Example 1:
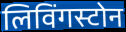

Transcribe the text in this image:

लिविंगस्टोन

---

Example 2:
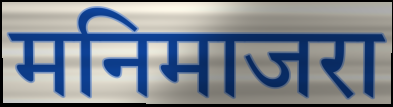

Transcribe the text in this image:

मनिमाजरा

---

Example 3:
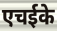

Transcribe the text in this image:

एचईके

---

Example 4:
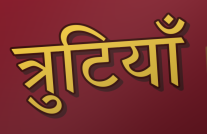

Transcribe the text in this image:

त्रुटियाँ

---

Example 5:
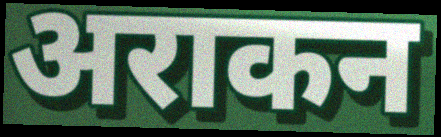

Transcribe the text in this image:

अराकन